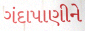
ગંદાપાણીને